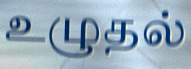
உழுதல்